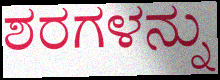
ಶರಗಳನ್ನು